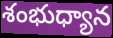
శంభుధ్యాన